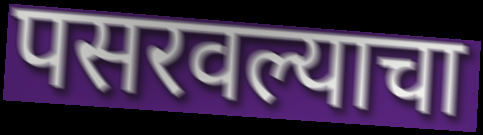
पसरवल्याचा